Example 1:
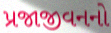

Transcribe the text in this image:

પ્રજાજીવનનો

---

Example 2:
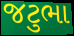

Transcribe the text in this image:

જટુભા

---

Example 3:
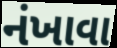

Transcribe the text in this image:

નંખાવા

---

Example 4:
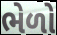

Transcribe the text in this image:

ભેળો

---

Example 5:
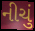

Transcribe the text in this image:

નીચું